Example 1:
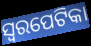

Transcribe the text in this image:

ସ୍ୱରପେଟିକା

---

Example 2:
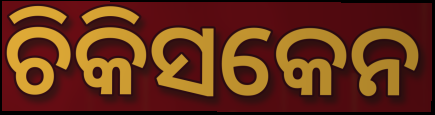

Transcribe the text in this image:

ଚିକିସକେନ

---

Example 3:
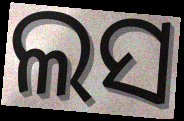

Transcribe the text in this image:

ଲସ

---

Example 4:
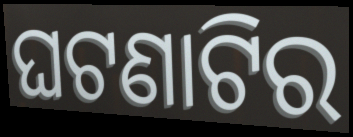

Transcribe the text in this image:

ଘଟଣାଟିର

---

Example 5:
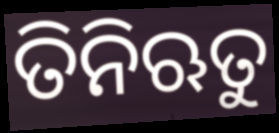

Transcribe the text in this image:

ତିନିଋତୁ